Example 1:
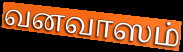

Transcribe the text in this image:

வனவாஸம்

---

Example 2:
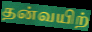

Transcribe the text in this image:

தன்வயிற்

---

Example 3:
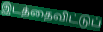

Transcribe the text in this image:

இடத்தைவிட்டுப்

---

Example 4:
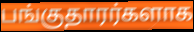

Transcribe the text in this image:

பங்குதாரர்களாக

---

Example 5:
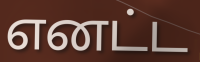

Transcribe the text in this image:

எனட்ட